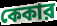
কেকার